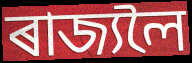
ৰাজ্যলৈ